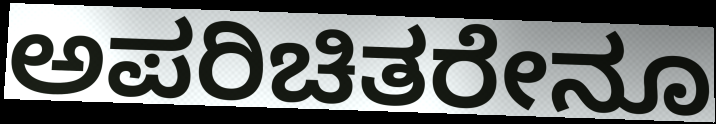
ಅಪರಿಚಿತರೇನೂ